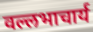
वल्लभाचार्य